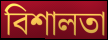
বিশালতা